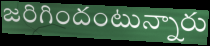
జరిగిందంటున్నారు